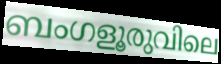
ബംഗളൂരുവിലെ